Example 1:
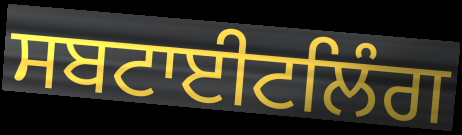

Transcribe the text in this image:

ਸਬਟਾਈਟਲਿੰਗ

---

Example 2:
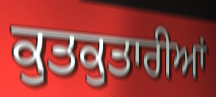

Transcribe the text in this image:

ਕੁਤਕੁਤਾਰੀਆਂ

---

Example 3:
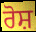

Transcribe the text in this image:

ਰੋਸ਼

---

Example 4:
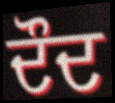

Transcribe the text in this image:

ਦੌਦ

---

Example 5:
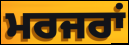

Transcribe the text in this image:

ਮਰਜਰਾਂ